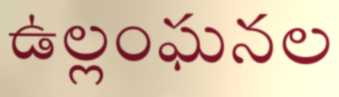
ఉల్లంఘనల